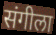
संगीला